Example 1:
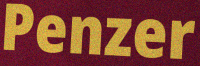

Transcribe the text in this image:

Penzer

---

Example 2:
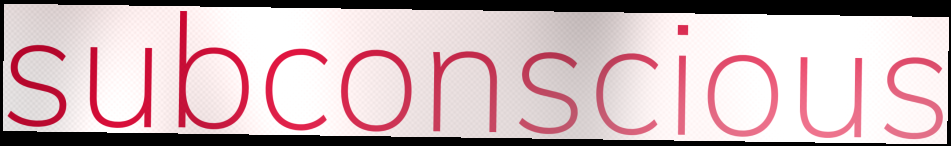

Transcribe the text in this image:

subconscious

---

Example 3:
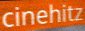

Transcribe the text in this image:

cinehitz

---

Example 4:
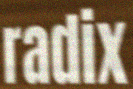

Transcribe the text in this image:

radix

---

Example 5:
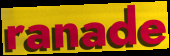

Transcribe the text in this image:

ranade